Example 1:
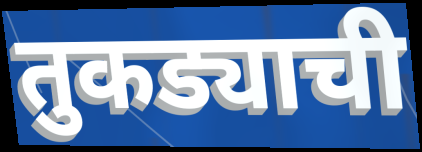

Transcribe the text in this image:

तुकड्याची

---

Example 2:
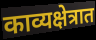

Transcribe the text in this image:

काव्यक्षेत्रात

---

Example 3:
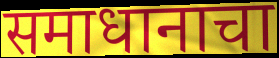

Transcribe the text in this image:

समाधानाचा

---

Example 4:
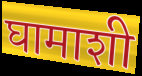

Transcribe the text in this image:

घामाशी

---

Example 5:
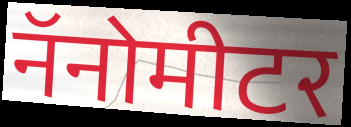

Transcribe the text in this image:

नॅनोमीटर